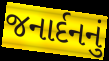
જનાર્દનનું